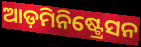
ଆଡ଼ମିନିଷ୍ଟ୍ରେସନ